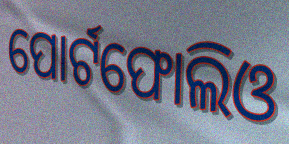
ପୋର୍ଟଫୋଲିଓ